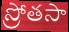
స్రోతసా